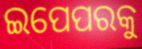
ଇପେପରକୁ